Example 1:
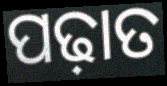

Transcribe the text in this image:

ପଢ଼ାତ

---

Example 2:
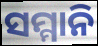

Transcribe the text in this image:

ସମ୍ମାନି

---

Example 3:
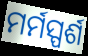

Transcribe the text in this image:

ମର୍ମସ୍ପର୍ଶ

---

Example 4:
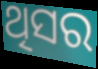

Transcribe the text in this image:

ଥିସର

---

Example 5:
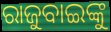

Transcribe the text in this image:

ରାଜୁବାଇଙ୍କୁ